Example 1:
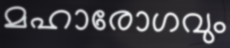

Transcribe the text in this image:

മഹാരോഗവും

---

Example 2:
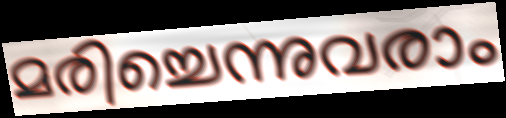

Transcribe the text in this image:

മരിച്ചെന്നുവരാം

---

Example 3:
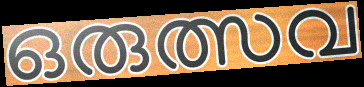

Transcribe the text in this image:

ഒരുത്സവ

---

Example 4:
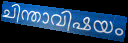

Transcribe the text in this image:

ചിന്താവിഷയം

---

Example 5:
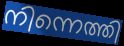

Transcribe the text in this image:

നിന്നെത്തി